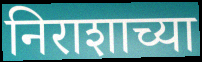
निराशाच्या